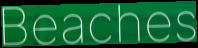
Beaches